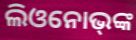
ଲିଓନୋଭ୍‌ଙ୍କ